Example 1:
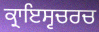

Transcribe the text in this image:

ਕ੍ਰਾਇਸ੍ਟਚਰਚ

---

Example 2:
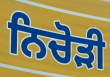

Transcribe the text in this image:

ਨਿਚੋੜੀ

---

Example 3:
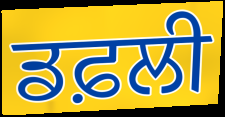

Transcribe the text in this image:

ਡਫ਼ਲੀ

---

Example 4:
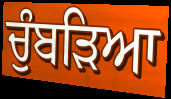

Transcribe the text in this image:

ਚੁੰਬੜਿਆ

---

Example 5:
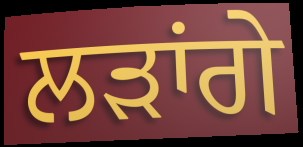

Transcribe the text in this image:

ਲੜਾਂਗੇ